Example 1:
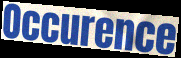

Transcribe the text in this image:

Occurence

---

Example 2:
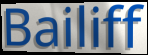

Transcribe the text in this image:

Bailiff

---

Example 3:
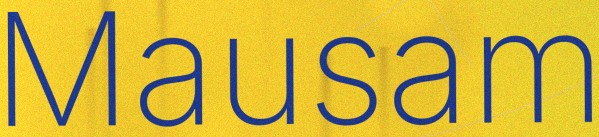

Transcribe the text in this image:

Mausam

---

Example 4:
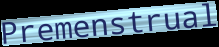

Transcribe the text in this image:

Premenstrual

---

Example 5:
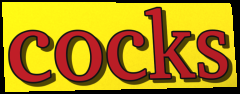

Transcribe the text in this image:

cocks